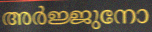
അർജ്ജുനോ